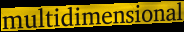
multidimensional